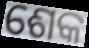
ଶେକ